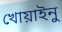
খোয়াইনু